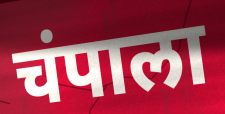
चंपाला